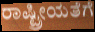
ರಾಷ್ಟ್ರೀಯತೆಗೆ